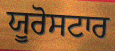
ਯੂਰੋਸਟਾਰ